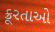
ક્રૂરતાઓ